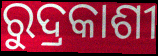
ରୁଦ୍ରକାଶୀ